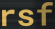
rsf